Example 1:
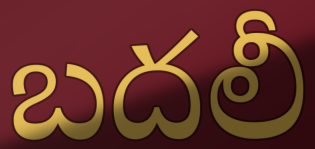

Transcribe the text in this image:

బదలీ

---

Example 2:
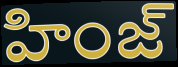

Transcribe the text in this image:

హింజ్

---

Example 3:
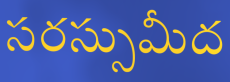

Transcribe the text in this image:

సరస్సుమీద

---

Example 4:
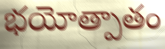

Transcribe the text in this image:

భయోత్పాతం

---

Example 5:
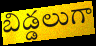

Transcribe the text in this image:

బిడ్డలుగా